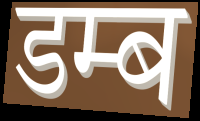
डम्ब